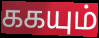
ககயும்